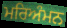
ਮਰਿਅੰਮਨ